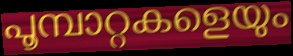
പൂമ്പാറ്റകളെയും